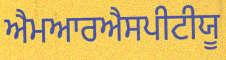
ਐਮਆਰਐਸਪੀਟੀਯੂ